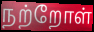
நற்றோள்